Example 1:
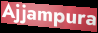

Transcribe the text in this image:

Ajjampura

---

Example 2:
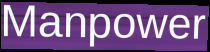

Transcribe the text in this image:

Manpower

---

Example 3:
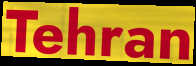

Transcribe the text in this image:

Tehran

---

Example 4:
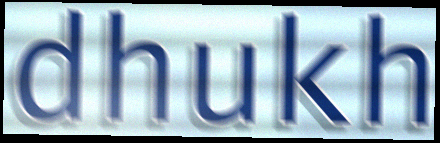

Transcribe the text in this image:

dhukh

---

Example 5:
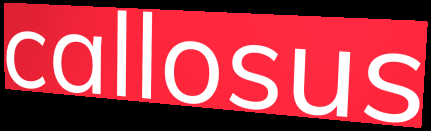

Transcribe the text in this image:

callosus